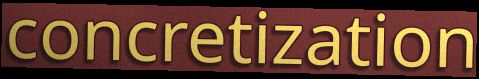
concretization